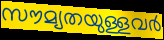
സൗമ്യതയുള്ളവർ